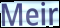
Meir